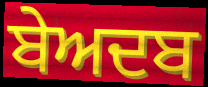
ਬੇਅਦਬ